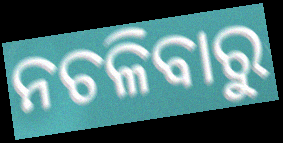
ନଚଳିବାରୁ